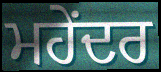
ਮਹੇਂਦਰ